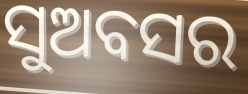
ସୁଅବସର